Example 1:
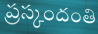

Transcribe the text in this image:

ప్రస్కందంతి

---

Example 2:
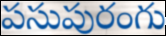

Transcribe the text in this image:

పసుపురంగు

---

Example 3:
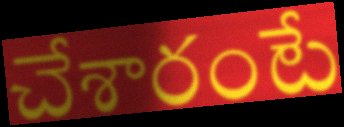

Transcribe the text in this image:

చేశారంటే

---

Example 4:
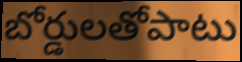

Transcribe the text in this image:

బోర్డులతోపాటు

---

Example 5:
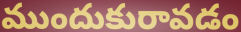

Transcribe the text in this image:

ముందుకురావడం